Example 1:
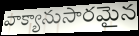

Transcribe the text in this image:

వాక్యానుసారమైన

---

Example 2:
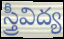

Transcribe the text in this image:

స్త్రీవిద్య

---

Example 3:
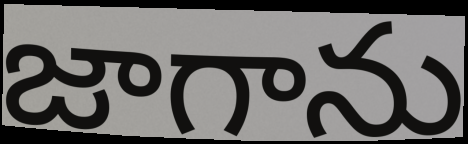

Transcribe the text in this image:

జాగాను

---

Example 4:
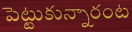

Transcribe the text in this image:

పెట్టుకున్నారంట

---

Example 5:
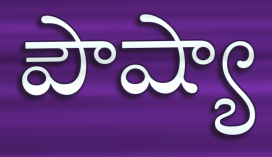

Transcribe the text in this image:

పౌష్యా